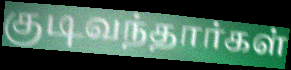
குடிவந்தார்கள்